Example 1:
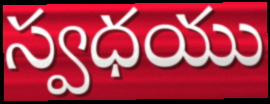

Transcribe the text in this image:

స్వధయు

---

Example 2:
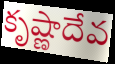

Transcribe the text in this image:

కృష్ణాదేవ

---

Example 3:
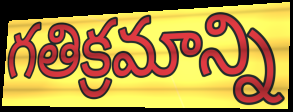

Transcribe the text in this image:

గతిక్రమాన్ని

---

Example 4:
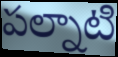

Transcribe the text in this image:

పల్నాటి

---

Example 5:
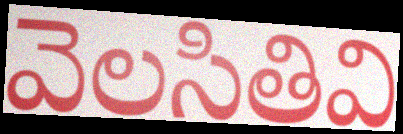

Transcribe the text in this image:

వెలసితివి